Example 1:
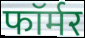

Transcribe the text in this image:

फॉर्मर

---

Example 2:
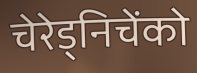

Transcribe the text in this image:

चेरेड्निचेंको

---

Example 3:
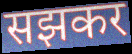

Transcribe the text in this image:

सझकर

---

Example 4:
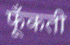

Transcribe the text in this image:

फूँकती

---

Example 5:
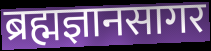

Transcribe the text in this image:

ब्रह्मज्ञानसागर